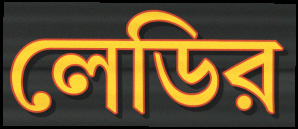
লেডির